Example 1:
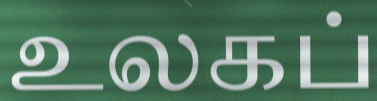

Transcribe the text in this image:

உலகப்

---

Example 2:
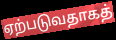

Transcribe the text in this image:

ஏற்படுவதாகத்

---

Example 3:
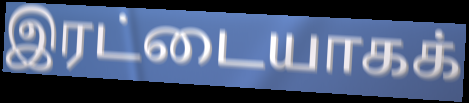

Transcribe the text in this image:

இரட்டையாகக்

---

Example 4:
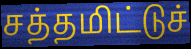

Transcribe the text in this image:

சத்தமிட்டுச்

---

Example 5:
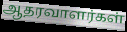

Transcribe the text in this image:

ஆதரவாளர்கள்